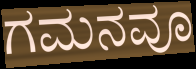
ಗಮನವೂ